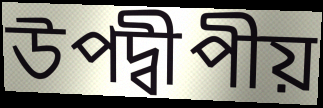
উপদ্বীপীয়